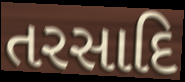
તરસાદિ